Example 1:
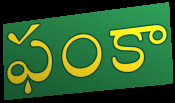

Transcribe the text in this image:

ఫంకా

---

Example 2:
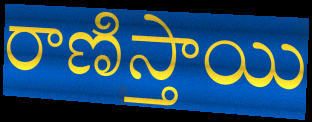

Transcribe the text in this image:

రాణిస్తాయి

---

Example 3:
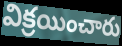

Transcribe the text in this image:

విక్రయించారు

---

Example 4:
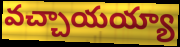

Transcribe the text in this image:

వచ్చాయయ్యా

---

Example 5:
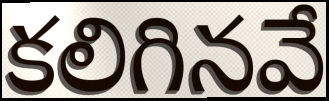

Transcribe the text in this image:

కలిగినవే